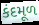
કંદમૂળ